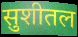
सुशीतल